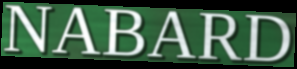
NABARD